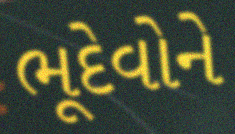
ભૂદેવોને